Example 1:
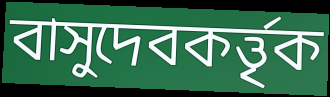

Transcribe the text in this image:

বাসুদেবকর্ত্তৃক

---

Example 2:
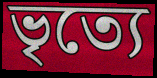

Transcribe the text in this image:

ভৃত্যে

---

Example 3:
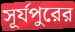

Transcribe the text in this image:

সূর্যপুরের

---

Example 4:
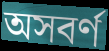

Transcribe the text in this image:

অসবর্ণ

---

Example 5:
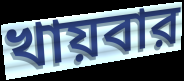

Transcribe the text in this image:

খায়বার